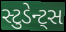
સ્ટુડેન્ટ્સ